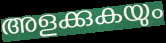
അളക്കുകയും